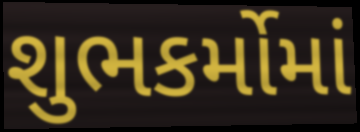
શુભકર્મોમાં